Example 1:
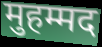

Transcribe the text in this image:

मुहम्मद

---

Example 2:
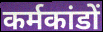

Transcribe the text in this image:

कर्मकांडों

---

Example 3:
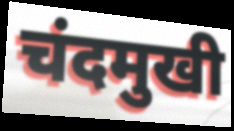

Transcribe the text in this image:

चंदमुखी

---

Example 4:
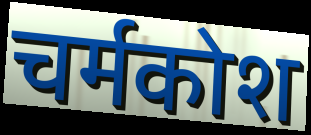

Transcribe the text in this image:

चर्मकोश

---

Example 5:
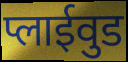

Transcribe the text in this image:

प्लाईवुड